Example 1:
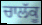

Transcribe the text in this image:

ਚਾਲੱਕੂ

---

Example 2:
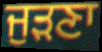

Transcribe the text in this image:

ਜੁੜਣਾ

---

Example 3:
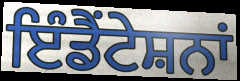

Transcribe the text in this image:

ਇੰਡੈਂਟੇਸ਼ਨਾਂ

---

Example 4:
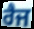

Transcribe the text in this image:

ਰੈਜ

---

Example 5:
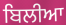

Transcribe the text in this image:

ਬਿਲੀਆ